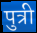
पुत्री